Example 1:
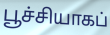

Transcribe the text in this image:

பூச்சியாகப்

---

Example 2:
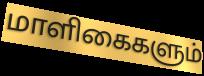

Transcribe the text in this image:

மாளிகைகளும்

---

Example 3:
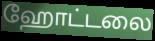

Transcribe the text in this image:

ஹோட்டலை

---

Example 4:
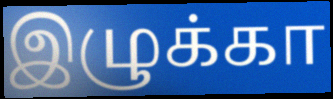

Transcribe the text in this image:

இழுக்கா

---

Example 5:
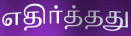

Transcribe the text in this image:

எதிர்த்தது